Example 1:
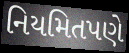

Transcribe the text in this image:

નિયમિતપણે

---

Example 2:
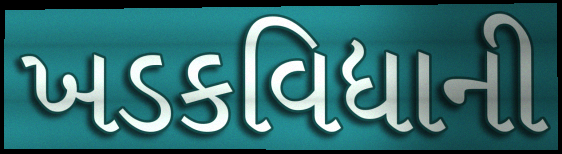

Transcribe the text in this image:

ખડકવિદ્યાની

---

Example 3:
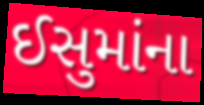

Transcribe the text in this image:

ઈસુમાંના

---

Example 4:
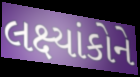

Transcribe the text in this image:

લક્ષ્યાંકોને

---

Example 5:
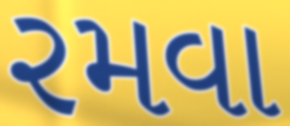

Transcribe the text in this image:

રમવા